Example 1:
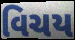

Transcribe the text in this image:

વિચય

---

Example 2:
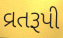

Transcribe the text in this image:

વ્રતરૂપી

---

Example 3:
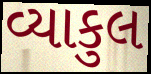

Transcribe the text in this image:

વ્યાકુલ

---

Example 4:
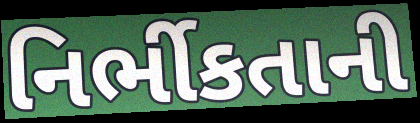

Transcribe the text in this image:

નિર્ભીકતાની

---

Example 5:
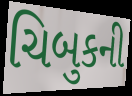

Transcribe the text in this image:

ચિબુકની